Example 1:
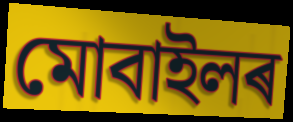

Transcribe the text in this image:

মোবাইলৰ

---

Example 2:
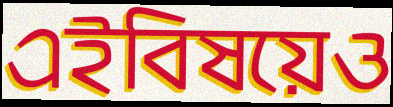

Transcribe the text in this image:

এইবিষয়েও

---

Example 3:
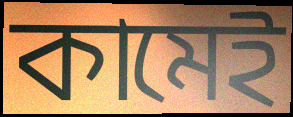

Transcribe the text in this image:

কামেই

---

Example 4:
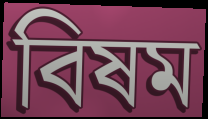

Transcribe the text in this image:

বিষম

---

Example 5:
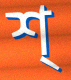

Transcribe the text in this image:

শ্